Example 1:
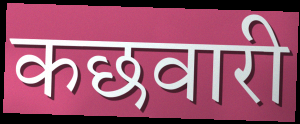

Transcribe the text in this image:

कछवारी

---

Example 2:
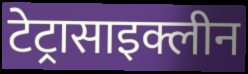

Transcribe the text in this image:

टेट्रासाइक्लीन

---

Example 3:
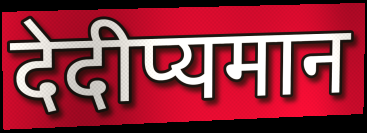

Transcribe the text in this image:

देदीप्यमान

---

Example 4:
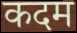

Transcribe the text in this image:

कदम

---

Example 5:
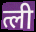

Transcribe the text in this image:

त्ली